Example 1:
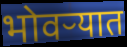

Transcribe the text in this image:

भोवऱ्यात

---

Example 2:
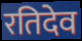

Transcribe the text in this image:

रतिदेव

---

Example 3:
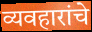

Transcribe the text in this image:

व्यवहारांचे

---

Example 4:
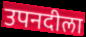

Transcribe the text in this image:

उपनदीला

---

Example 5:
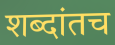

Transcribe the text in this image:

शब्दांतच